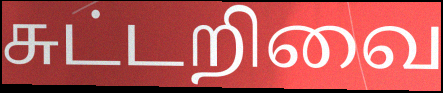
சுட்டறிவை